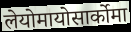
लेयोमायोसार्कोमा